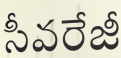
సీవరేజీ